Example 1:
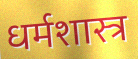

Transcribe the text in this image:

धर्मशास्त्र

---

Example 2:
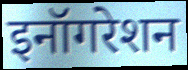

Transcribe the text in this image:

इनॉगरेशन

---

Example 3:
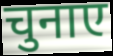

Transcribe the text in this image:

चुनाए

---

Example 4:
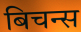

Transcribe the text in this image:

बिचन्स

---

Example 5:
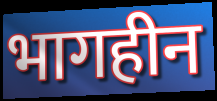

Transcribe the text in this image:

भागहीन